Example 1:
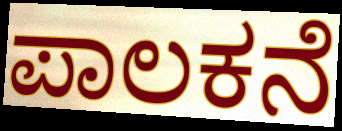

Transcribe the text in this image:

ಪಾಲಕನೆ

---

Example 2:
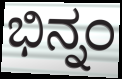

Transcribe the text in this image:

ಭಿನ್ನಂ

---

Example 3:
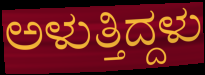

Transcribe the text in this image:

ಅಳುತ್ತಿದ್ದಳು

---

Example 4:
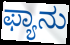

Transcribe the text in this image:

ಫ್ಯಾನು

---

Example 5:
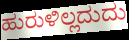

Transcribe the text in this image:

ಹುರುಳಿಲ್ಲದುದು